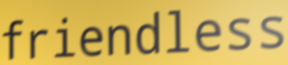
friendless